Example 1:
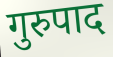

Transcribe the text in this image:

गुरुपाद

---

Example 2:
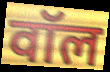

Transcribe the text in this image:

वॉल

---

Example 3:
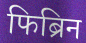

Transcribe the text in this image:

फिब्रिन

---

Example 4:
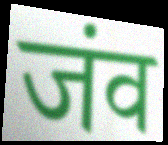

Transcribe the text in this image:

जंव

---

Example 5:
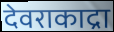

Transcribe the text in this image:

देवराकाद्रा